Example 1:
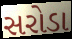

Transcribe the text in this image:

સરોડા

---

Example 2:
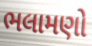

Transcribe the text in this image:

ભલામણો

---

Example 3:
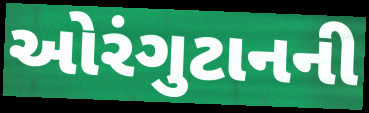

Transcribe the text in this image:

ઓરંગુટાનની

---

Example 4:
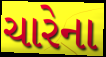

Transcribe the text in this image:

ચારેના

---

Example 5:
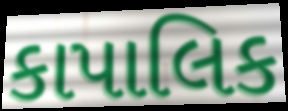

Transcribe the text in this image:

કાપાલિક